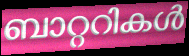
ബാറ്ററികൾ